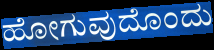
ಹೋಗುವುದೊಂದು